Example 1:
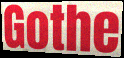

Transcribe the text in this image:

Gothe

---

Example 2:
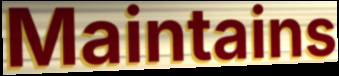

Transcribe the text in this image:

Maintains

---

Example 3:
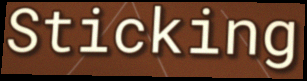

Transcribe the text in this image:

Sticking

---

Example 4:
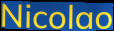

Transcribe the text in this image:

Nicolao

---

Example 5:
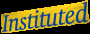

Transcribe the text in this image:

Instituted